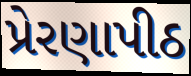
પ્રેરણાપીઠ